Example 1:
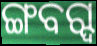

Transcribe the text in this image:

ଙ୍ଗବଗ୍ଦ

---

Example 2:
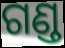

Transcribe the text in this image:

ଗଣ୍ଡ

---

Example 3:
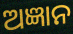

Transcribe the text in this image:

ଅଜ୍ଞାନ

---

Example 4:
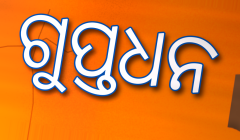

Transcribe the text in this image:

ଗୁପ୍ତଧନ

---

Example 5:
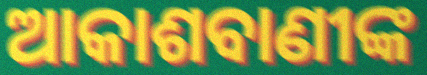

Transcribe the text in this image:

ଆକାଶବାଣୀଙ୍କ